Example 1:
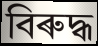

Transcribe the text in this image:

বিৰুদ্ধ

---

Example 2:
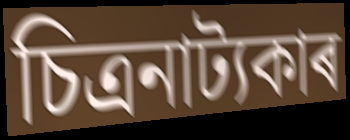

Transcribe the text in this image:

চিত্ৰনাট্যকাৰ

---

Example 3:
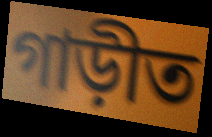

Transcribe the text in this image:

গাড়ীত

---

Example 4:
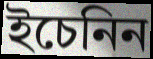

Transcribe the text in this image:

ইচেনিন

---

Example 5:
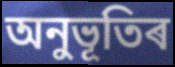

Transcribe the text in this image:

অনুভূতিৰ